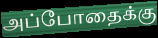
அப்போதைக்கு